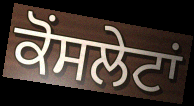
ਕੋਂਸਲੇਟਾਂ